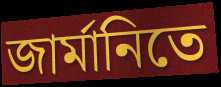
জার্মানিতে